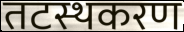
तटस्थकरण